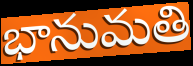
భానుమతి